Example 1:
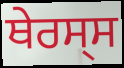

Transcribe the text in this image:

ਥੇਰਸ੍ਸ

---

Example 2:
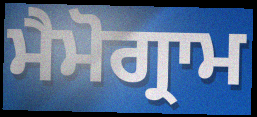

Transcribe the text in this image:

ਮੈਮੋਗ੍ਰਾਮ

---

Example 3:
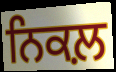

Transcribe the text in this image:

ਨਿਕਲ਼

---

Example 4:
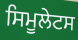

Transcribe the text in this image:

ਸਿਮੂਲੇਟਸ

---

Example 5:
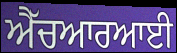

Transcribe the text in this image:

ਐੱਚਆਰਆਈ